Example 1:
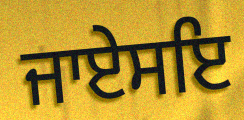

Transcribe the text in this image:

ਜਾਏਸਇ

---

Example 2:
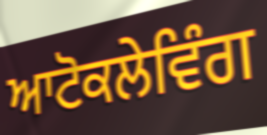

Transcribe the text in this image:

ਆਟੋਕਲੇਵਿੰਗ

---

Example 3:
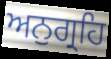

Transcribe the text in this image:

ਅਨੁਗ੍ਰਹਿ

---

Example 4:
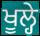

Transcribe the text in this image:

ਖੂਲ੍ਹ੍ਹੇ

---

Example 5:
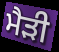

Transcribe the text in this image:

ਮੈੜੀ